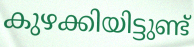
കുഴക്കിയിട്ടുണ്ട്